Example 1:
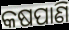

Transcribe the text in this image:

କଷପାଣି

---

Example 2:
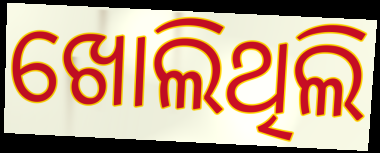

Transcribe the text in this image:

ଖୋଲିଥିଲି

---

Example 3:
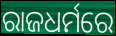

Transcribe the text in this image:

ରାଜଧର୍ମରେ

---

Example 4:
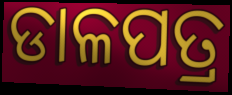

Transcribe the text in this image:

ଡାଳପତ୍ର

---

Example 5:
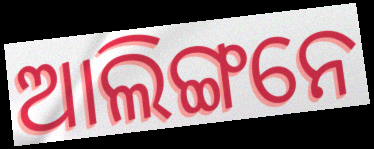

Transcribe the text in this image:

ଆଲିଙ୍ଗନେ